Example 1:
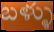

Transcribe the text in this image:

బళ్ళు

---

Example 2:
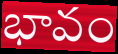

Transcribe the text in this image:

భావం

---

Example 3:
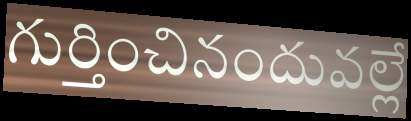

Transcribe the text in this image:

గుర్తించినందువల్లే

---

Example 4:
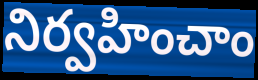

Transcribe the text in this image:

నిర్వహించాం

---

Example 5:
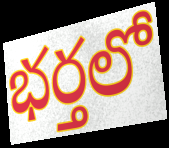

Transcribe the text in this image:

భర్తలో